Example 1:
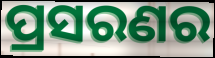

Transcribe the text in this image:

ପ୍ରସରଣର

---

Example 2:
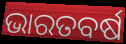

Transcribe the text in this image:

ଭାରତବର୍ଷ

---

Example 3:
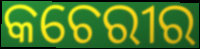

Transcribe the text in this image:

କଚେରୀର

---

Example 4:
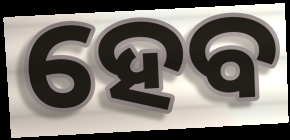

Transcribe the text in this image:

ହେବ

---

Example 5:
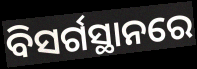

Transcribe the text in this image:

ବିସର୍ଗସ୍ଥାନରେ